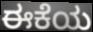
ಈಕೆಯ